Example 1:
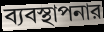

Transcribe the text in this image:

ব্যবস্থাপনার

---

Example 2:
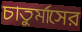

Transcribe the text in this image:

চাতুর্মাসের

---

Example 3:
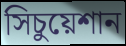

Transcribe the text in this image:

সিচুয়েশান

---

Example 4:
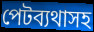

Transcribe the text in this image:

পেটব্যথাসহ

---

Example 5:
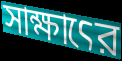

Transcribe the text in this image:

সাক্ষাৎের